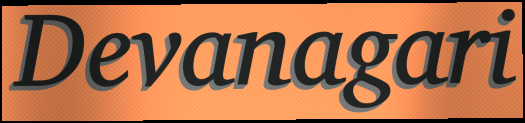
Devanagari